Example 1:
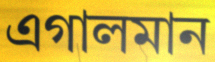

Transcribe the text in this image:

এগালমান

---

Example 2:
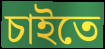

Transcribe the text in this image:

চাইতে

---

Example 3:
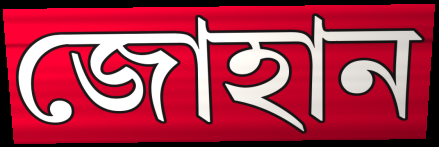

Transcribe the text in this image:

জোহান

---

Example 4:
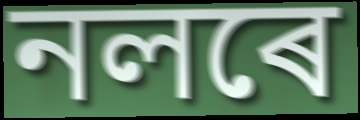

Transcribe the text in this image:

নলৰে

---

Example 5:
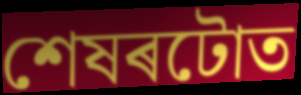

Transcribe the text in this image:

শেষৰটোত